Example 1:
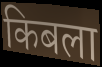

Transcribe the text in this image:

किबला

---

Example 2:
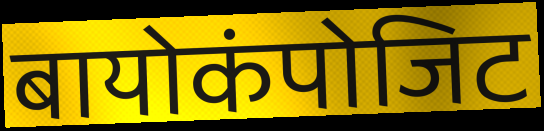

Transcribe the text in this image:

बायोकंपोजिट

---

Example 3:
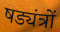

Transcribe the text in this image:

षड्यंत्रों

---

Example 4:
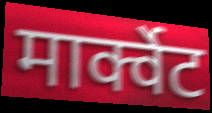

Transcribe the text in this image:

मार्क्वेट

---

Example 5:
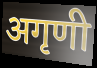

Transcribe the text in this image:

अगृणी